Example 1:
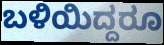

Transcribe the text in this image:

ಬಳಿಯಿದ್ದರೂ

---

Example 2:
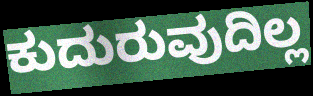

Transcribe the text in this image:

ಕುದುರುವುದಿಲ್ಲ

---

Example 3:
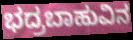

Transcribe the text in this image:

ಭದ್ರಬಾಹುವಿನ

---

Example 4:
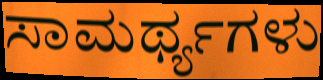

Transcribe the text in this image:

ಸಾಮರ್ಥ್ಯಗಳು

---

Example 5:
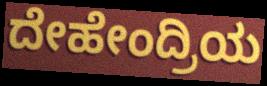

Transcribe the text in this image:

ದೇಹೇಂದ್ರಿಯ